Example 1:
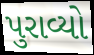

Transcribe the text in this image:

પુરાવ્યો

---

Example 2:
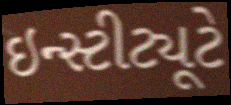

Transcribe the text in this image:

ઇન્સ્ટીટ્યૂટે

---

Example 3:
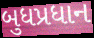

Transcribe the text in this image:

બુધપ્રધાન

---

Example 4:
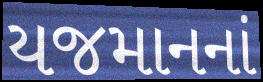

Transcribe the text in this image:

યજમાનનાં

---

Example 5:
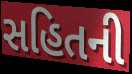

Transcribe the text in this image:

સહિતની